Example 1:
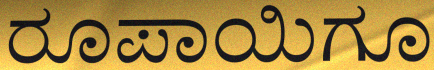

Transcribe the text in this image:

ರೂಪಾಯಿಗೂ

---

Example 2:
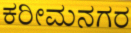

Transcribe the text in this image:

ಕರೀಮನಗರ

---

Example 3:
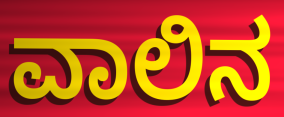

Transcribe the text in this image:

ವಾಲಿನ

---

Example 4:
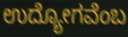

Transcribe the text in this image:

ಉದ್ಯೋಗವೆಂಬ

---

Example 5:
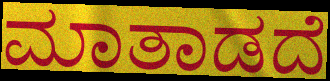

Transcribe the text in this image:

ಮಾತಾಡದೆ